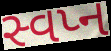
સ્વપ્ન